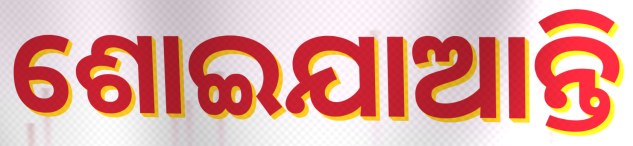
ଶୋଇଯାଆନ୍ତି